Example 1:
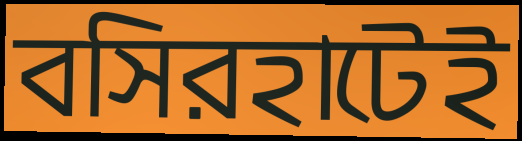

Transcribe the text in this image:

বসিরহাটেই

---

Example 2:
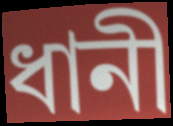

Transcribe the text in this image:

ধানী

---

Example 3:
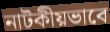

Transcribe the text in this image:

নাটকীয়ভাবে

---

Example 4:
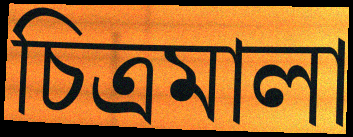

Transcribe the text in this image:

চিত্রমালা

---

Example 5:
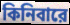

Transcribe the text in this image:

কিনিবারে